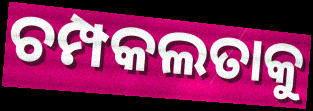
ଚମ୍ପକଲତାକୁ